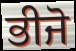
ਭੀਜੋ